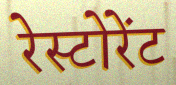
रेस्टोरेंट